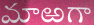
మాఱగా